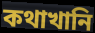
কথাখানি